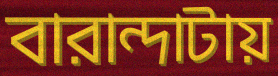
বারান্দাটায়